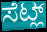
ಸೆಟ್ಲ್